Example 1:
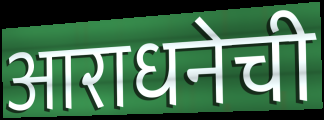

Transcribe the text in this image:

आराधनेची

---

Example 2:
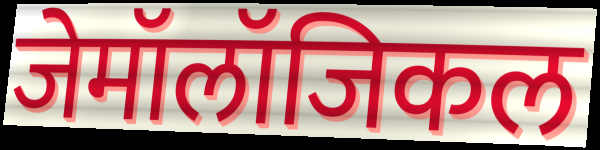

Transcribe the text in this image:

जेमॉलॉजिकल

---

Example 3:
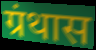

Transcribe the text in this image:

ग्रंथास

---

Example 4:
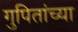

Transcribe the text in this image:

गुपितांच्या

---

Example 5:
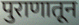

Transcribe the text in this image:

पुराणातून